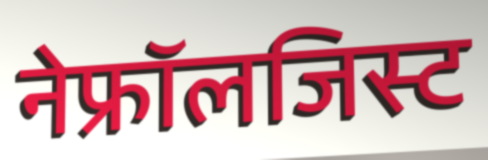
नेफ्रॉलजिस्ट